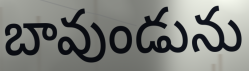
బావుండును